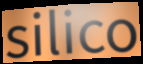
silico